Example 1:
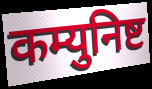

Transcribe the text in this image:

कम्युनिष्ट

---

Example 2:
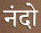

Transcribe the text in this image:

नंदो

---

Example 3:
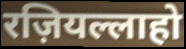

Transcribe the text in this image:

रज़ियल्लाहो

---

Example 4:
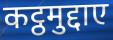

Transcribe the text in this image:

कट्ठमुद्दाए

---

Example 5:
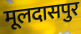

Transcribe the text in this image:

मूलदासपुर